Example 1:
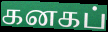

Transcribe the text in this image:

கனகப்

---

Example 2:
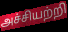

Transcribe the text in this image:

அச்சியற்றி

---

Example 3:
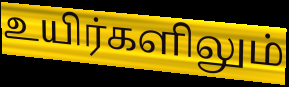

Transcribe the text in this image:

உயிர்களிலும்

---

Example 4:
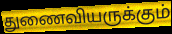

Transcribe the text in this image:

துணைவியருக்கும்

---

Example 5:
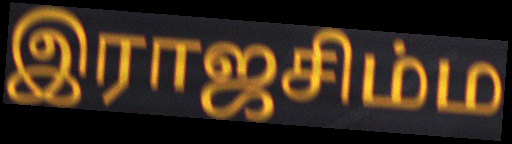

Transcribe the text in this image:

இராஜசிம்ம